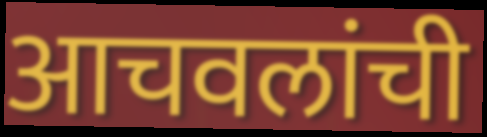
आचवलांची